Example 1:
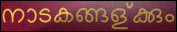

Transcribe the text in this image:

നാടകങ്ങള്ക്കും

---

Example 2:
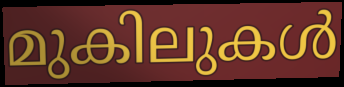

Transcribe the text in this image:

മുകിലുകൾ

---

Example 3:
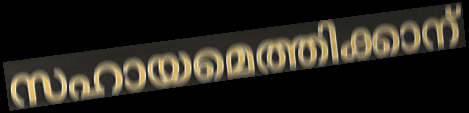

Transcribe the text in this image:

സഹായമെത്തിക്കാന്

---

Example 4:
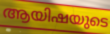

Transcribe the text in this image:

ആയിഷയുടെ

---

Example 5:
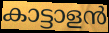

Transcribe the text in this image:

കാട്ടാളൻ